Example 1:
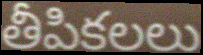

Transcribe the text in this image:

తీపికలలు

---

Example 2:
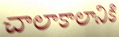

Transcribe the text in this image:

చాలాకాలానికి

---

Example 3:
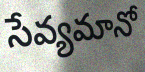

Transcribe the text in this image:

సేవ్యమానో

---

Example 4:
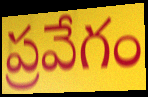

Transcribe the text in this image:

ప్రవేగం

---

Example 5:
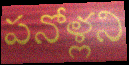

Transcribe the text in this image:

పనోళ్లని